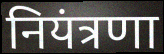
नियंत्रणा